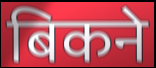
बिकने